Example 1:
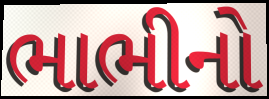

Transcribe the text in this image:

ભાભીનો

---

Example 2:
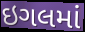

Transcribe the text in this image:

ઇગલમાં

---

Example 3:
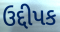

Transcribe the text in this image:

ઉદ્દીપક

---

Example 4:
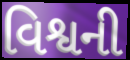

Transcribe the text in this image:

વિશ્વની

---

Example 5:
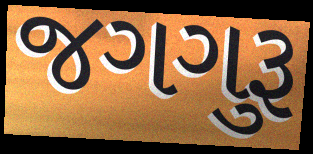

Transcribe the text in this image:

જગગુરૂ